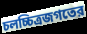
চলচ্চিত্রজগতের